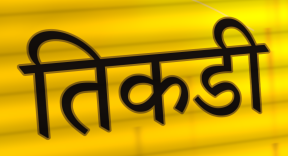
तिकडी